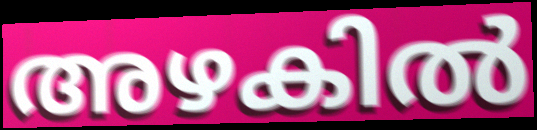
അഴകിൽ